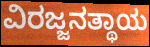
ವಿರಜ್ಜನತ್ಥಾಯ